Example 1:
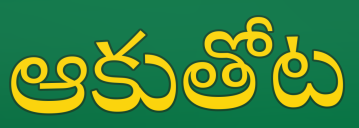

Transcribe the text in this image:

ఆకుతోట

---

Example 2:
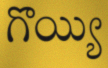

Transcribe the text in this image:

గొయ్యి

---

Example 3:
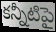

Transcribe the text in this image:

కన్నీటిపై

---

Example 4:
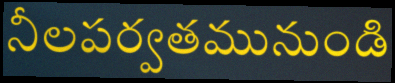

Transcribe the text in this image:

నీలపర్వతమునుండి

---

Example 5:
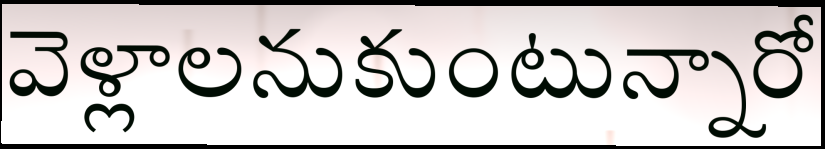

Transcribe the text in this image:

వెళ్లాలనుకుంటున్నారో